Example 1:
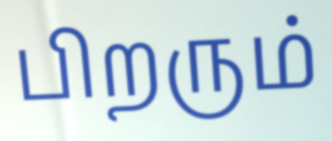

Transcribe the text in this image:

பிறரும்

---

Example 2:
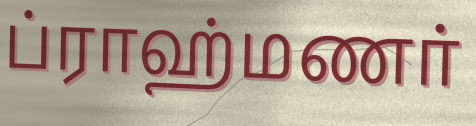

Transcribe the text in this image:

ப்ராஹ்மணர்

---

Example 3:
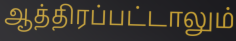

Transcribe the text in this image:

ஆத்திரப்பட்டாலும்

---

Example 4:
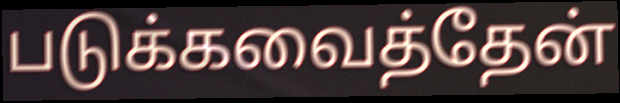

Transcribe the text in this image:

படுக்கவைத்தேன்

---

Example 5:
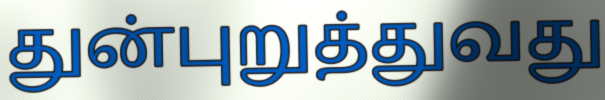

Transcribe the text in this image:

துன்புறுத்துவது